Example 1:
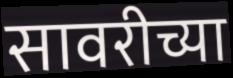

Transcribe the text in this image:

सावरीच्या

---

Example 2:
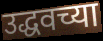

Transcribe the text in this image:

उद्धवच्या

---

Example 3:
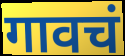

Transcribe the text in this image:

गावचं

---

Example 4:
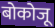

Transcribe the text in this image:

बोकोजू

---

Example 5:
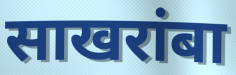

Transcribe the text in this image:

साखरांबा